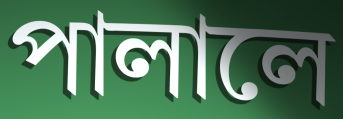
পালালে